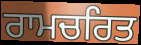
ਰਾਮਚਰਿਤ